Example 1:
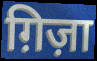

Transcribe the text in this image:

ग़िज़ा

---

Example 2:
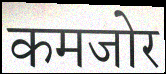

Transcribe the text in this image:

कमजोर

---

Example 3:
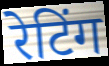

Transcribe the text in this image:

रेटिंग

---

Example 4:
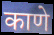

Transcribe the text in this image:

काणे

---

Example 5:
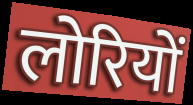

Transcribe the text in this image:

लोरियों